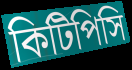
কিটিপিসি